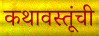
कथावस्तूंची